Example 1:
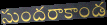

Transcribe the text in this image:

సుందరాకాండ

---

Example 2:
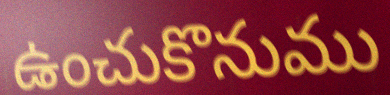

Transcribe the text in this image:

ఉంచుకొనుము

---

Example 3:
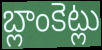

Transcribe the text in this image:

బ్లాంకెట్లు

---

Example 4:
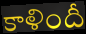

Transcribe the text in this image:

కాళిందీ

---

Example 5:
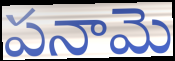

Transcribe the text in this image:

పనామె